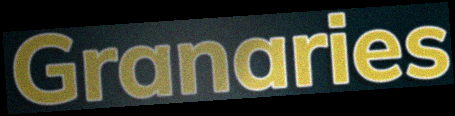
Granaries